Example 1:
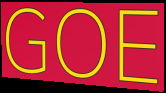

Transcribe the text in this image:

GOE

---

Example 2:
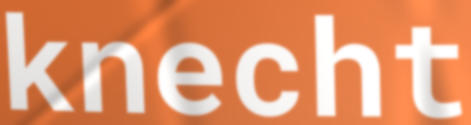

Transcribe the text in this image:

knecht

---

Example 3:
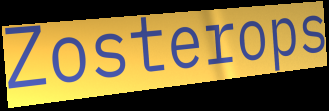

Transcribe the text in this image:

Zosterops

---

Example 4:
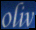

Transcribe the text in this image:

oliv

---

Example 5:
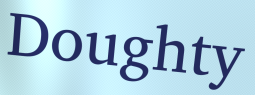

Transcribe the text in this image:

Doughty